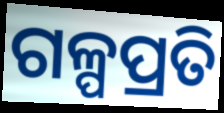
ଗଳ୍ପପ୍ରତି